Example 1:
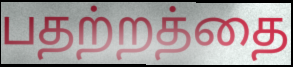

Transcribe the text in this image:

பதற்றத்தை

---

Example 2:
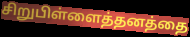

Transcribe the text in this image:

சிறுபிள்ளைத்தனத்தை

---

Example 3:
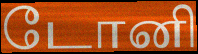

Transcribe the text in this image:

டோனி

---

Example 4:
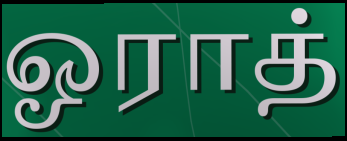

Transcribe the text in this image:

ஓராத்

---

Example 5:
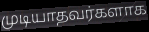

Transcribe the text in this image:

முடியாதவர்களாக